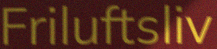
Friluftsliv